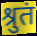
श्रुतं